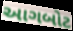
આગબોટ